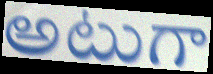
అటుగా